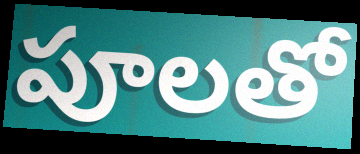
పూలతో